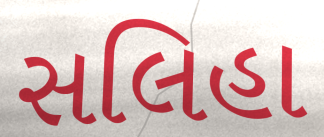
સલિહા